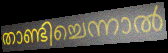
താണ്ടിച്ചെന്നാൽ